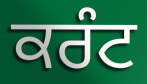
ਕਰੰਟ